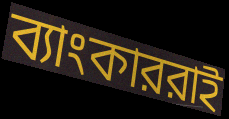
ব্যাংকাররাই